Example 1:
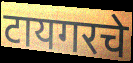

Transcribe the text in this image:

टायगरचे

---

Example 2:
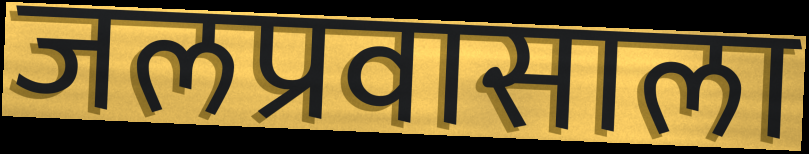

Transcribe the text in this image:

जलप्रवासाला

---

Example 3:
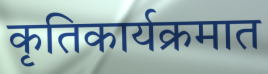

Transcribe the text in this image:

कृतिकार्यक्रमात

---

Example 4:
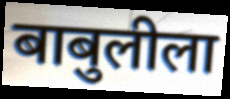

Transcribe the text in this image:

बाबुलीला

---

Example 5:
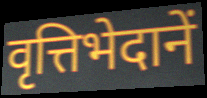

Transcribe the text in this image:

वृत्तिभेदानें